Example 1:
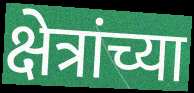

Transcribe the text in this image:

क्षेत्रांच्या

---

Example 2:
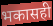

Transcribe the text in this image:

भकासही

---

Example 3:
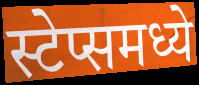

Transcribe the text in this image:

स्टेप्समध्ये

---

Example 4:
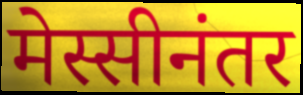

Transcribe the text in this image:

मेस्सीनंतर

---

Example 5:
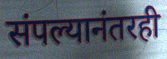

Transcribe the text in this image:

संपल्यानंतरही